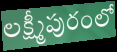
లక్ష్మీపురంలో